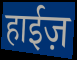
हाईज़